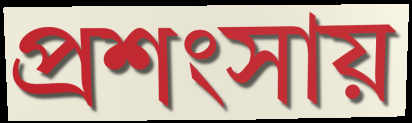
প্রশংসায়